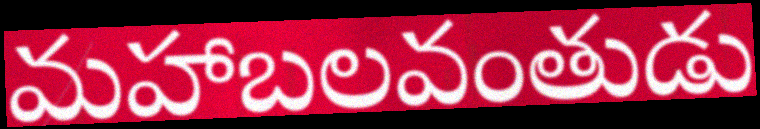
మహాబలవంతుడు